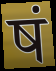
षं